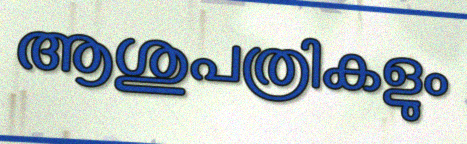
ആശുപത്രികളും